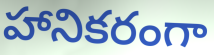
హానికరంగా